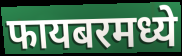
फायबरमध्ये